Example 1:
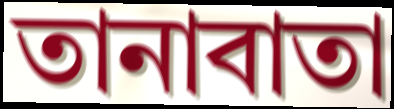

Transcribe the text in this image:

তানাবাতা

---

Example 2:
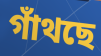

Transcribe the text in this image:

গাঁথছে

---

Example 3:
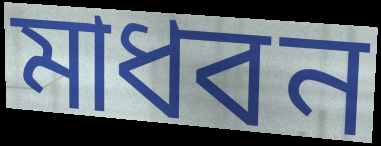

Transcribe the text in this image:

মাধবন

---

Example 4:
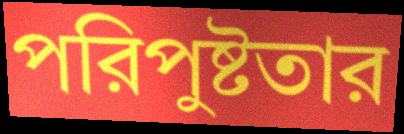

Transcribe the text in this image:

পরিপুষ্টতার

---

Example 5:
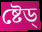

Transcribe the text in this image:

ষ্টেড্